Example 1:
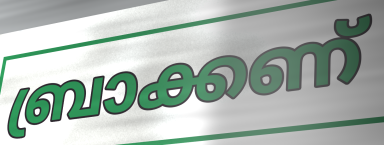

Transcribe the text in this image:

ബ്രാക്കണ്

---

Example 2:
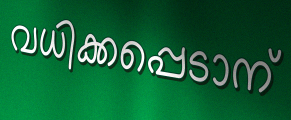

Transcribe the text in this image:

വധിക്കപ്പെടാന്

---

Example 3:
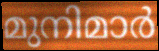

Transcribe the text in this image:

മുനിമാർ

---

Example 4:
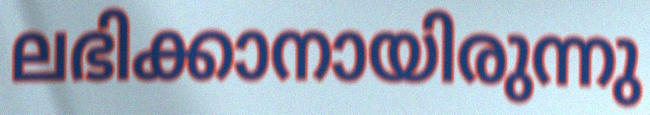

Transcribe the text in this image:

ലഭിക്കാനായിരുന്നു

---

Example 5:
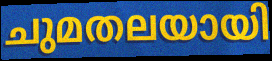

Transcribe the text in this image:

ചുമതലയായി